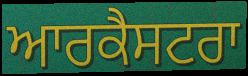
ਆਰਕੈਸਟਰਾ